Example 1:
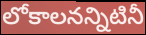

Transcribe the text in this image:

లోకాలనన్నిటినీ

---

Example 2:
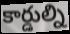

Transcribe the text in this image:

కార్డుల్ని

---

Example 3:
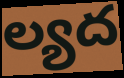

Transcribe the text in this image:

ల్యద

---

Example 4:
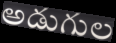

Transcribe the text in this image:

అడుగుల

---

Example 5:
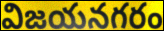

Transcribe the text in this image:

విజయనగరం